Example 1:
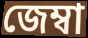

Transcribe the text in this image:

জেম্বা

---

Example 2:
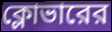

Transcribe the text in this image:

ক্লোভারের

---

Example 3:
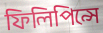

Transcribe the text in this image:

ফিলিপিন্সে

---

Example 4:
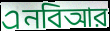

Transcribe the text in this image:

এনবিআর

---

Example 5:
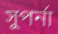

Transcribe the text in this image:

সুপর্না